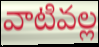
వాటివల్ల